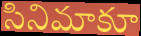
సినిమాకూ